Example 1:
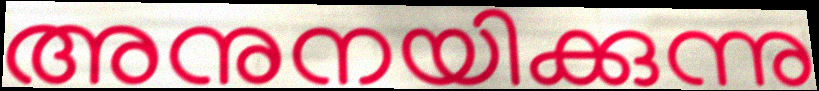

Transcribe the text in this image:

അനുനയിക്കുന്നു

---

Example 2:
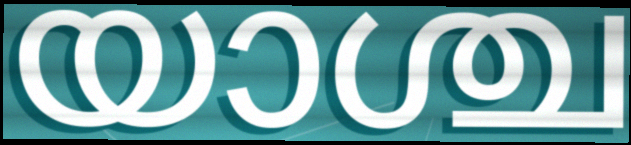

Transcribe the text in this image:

യാശ്ച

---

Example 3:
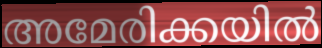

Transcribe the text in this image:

അമേരിക്കയിൽ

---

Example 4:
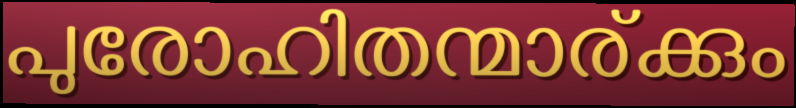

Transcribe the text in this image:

പുരോഹിതന്മാര്ക്കും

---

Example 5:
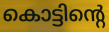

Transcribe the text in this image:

കൊട്ടിന്റെ